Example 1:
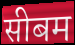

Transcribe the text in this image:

सीबम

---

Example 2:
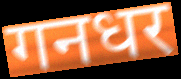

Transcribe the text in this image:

गनधर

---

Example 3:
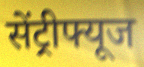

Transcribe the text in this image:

सेंट्रीफ्यूज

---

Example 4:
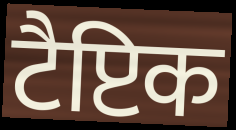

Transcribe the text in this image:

टैप्टिक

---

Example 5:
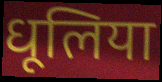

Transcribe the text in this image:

धूलिया